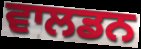
ਵਾਲਡਨ